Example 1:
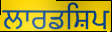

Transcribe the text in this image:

ਲਾਰਡਸ਼ਿਪ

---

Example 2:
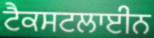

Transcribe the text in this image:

ਟੈਕਸਟਲਾਈਨ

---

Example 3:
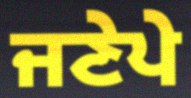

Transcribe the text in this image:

ਜਣੇਪੇ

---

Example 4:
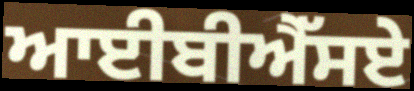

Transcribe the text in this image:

ਆਈਬੀਐੱਸਏ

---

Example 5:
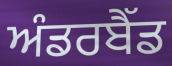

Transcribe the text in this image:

ਅੰਡਰਬੈੱਡ